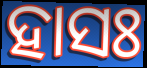
ହାସଃ